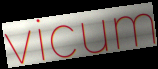
vicum